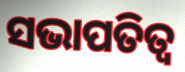
ସଭାପତିତ୍ଵ